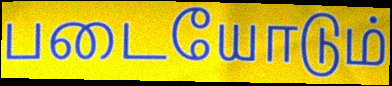
படையோடும்